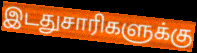
இடதுசாரிகளுக்கு